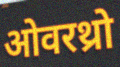
ओवरथ्रो